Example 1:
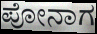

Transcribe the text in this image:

ಪೋನಾಗ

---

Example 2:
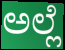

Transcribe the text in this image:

ಅಲ್ಲೆ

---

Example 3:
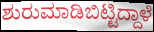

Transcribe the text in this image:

ಶುರುಮಾಡಿಬಿಟ್ಟಿದ್ದಾಳೆ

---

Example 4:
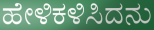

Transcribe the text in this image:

ಹೇಳಿಕಳಿಸಿದನು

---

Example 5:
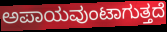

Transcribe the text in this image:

ಅಪಾಯವುಂಟಾಗುತ್ತದೆ